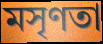
মসৃণতা